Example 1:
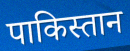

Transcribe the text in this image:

पाकिस्तान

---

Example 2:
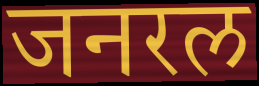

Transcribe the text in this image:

जनरल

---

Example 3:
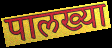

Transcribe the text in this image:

पालख्या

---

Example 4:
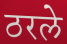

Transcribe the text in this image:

ठरले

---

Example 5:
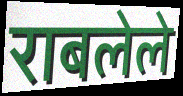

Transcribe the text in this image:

राबलेले